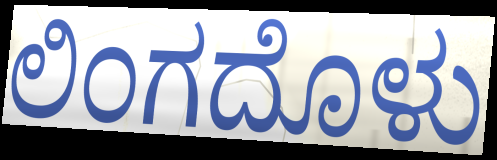
ಲಿಂಗದೊಳು